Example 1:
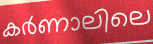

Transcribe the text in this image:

കർണാലിലെ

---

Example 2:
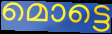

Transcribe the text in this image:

മൊട്ടെ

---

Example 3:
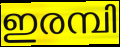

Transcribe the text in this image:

ഇരമ്പി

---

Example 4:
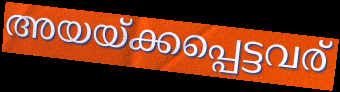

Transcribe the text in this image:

അയയ്ക്കപ്പെട്ടവര്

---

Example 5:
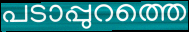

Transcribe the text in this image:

പടാപ്പുറത്തെ